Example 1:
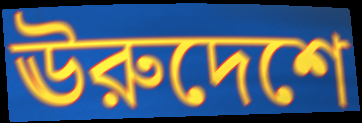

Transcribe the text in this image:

ঊরুদেশে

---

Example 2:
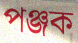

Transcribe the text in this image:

পঞ্জক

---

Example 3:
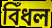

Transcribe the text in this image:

বিঁধল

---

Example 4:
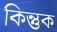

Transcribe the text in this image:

কিন্তুক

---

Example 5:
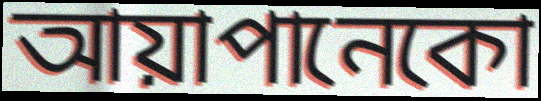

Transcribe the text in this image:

আয়াপানেকো